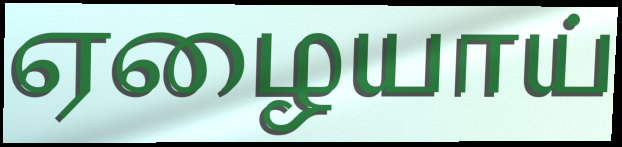
ஏழையாய்